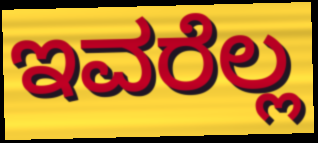
ಇವರೆಲ್ಲ